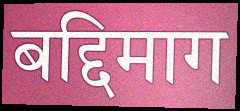
बद्दिमाग